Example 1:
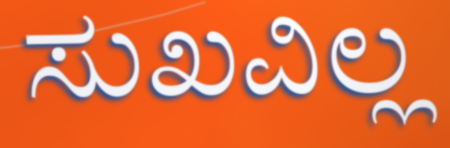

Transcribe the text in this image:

ಸುಖವಿಲ್ಲ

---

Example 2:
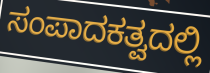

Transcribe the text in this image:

ಸಂಪಾದಕತ್ವದಲ್ಲಿ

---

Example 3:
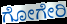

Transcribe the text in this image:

ಗೋಗೇರಿ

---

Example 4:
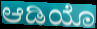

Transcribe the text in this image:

ಆಡಿಯೊ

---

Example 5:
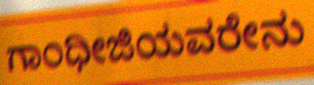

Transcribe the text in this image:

ಗಾಂಧೀಜಿಯವರೇನು